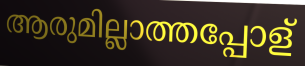
ആരുമില്ലാത്തപ്പോള്